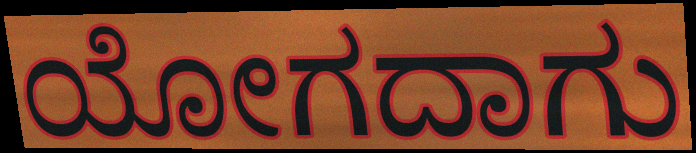
ಯೋಗದಾಗು